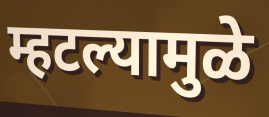
म्हटल्यामुळे